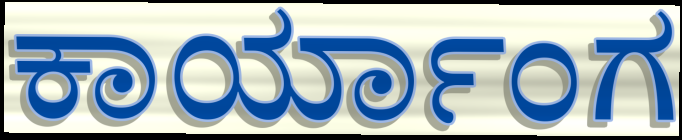
ಕಾರ್ಯಾಂಗ